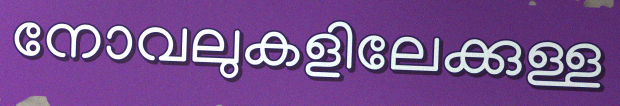
നോവലുകളിലേക്കുള്ള